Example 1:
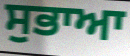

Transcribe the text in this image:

ਸੁਭਾਆ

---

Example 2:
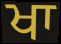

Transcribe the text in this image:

ਖਾ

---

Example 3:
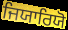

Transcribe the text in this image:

ਜਿਯਾਰਿਯੋ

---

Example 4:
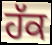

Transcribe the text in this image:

ਹੱਕ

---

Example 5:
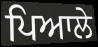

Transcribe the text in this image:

ਪਿਆਲੇ